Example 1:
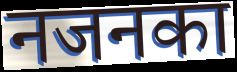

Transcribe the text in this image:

नजनका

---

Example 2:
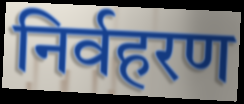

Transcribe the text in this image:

निर्वहरण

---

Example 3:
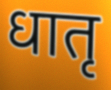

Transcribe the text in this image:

धातृ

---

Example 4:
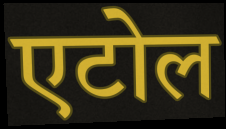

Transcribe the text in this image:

एटोल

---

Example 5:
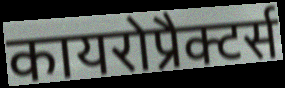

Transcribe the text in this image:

कायरोप्रैक्टर्स